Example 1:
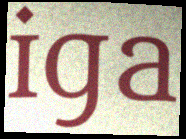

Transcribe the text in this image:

iga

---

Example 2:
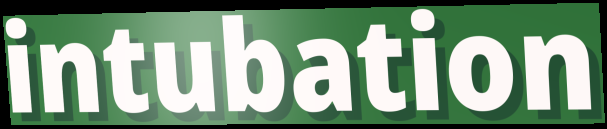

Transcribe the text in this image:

intubation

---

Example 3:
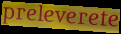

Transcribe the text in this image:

preleverete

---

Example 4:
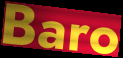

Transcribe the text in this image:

Baro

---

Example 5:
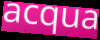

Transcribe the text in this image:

acqua